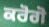
ਕਰੋਗੋ